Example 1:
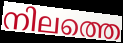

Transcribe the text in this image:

നിലത്തെ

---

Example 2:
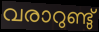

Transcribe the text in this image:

വരാറുണ്ടു്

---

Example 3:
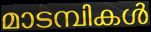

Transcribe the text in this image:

മാടമ്പികൾ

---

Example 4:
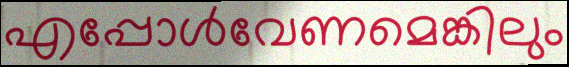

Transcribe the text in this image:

എപ്പോൾവേണമെങ്കിലും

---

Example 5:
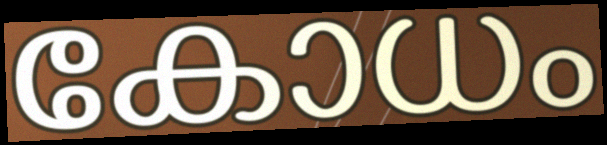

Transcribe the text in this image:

കോധം